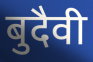
बुदैवी